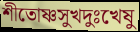
শীতোষ্ণসুখদুঃখেষু